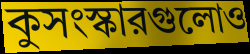
কুসংস্কারগুলোও